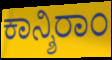
ಕಾನ್ಶಿರಾಂ